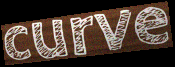
curve